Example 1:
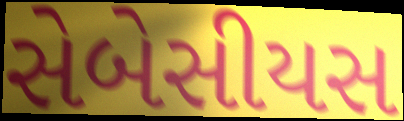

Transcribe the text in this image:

સેબેસીયસ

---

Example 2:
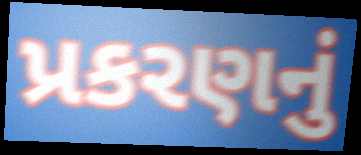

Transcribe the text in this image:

પ્રકરણનું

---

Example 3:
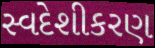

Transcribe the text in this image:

સ્વદેશીકરણ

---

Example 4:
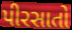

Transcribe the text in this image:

પીરસાતો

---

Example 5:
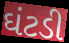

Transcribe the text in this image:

ઘંટડી